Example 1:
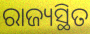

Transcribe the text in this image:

ରାଜ୍ୟସ୍ଥିତ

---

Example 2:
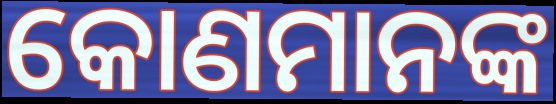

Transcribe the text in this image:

କୋଣମାନଙ୍କ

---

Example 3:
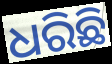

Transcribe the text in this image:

ଧରିଛି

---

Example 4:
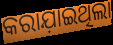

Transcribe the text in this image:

କରାଯ଼ାଇଥିଲା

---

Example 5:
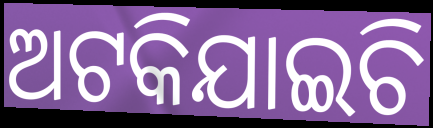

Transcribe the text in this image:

ଅଟକିଯାଇଚି